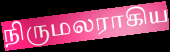
நிருமலராகிய